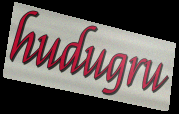
hudugru